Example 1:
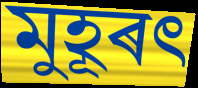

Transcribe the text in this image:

মুহূৰৎ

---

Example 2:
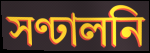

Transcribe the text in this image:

সণ্ঢালনি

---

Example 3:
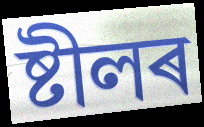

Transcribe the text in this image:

ষ্টীলৰ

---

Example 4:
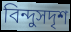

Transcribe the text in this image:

বিন্দুসদৃশ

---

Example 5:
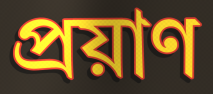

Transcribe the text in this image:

প্ৰয়াণ